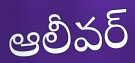
ఆలీవర్